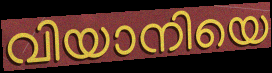
വിയാനിയെ